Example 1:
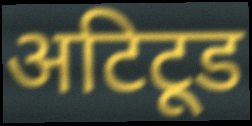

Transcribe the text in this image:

अटिटूड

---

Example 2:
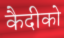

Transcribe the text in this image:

कैदीको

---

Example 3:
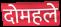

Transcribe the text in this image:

दोमहले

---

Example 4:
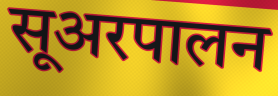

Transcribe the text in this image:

सूअरपालन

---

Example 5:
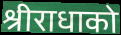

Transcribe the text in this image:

श्रीराधाको